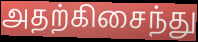
அதற்கிசைந்து